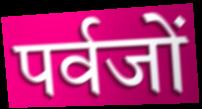
पर्वजों